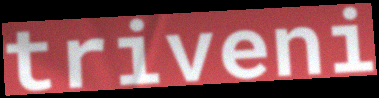
triveni